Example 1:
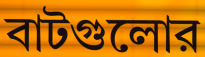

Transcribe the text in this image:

বাটগুলোর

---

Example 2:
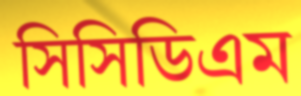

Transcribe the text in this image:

সিসিডিএম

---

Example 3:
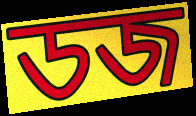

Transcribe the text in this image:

ডজ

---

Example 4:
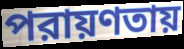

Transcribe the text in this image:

পরায়ণতায়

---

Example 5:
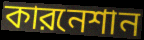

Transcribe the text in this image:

কারনেশান